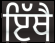
ਇੱਥੈ